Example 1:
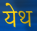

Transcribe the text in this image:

येथ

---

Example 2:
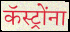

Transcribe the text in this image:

कॅस्ट्रोंना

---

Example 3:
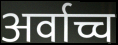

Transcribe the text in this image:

अर्वाच्च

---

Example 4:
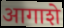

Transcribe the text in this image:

आगाशे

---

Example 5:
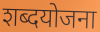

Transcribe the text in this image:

शब्दयोजना